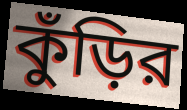
কুঁড়ির